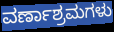
ವರ್ಣಾಶ್ರಮಗಳು